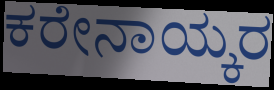
ಕರೇನಾಯ್ಕರ